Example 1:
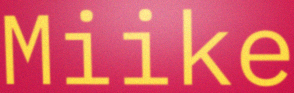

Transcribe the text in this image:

Miike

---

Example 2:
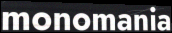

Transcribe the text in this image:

monomania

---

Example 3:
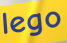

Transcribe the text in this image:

lego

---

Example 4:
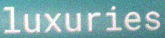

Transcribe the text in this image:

luxuries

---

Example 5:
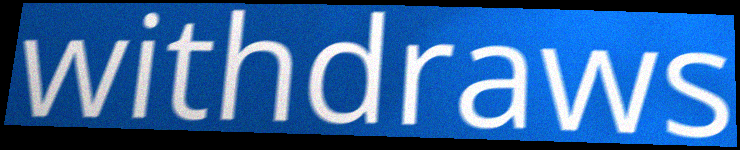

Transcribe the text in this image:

withdraws